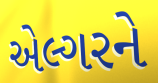
એલ્ગરને